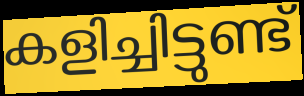
കളിച്ചിട്ടുണ്ട്